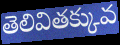
తెలివితక్కువ